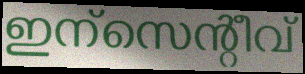
ഇന്സെന്റീവ്